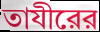
তাযীরের